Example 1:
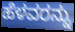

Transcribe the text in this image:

ಹೆಳವರನ್ನು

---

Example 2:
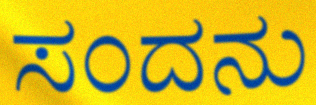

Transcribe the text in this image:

ಸಂದನು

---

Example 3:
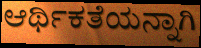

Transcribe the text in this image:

ಆರ್ಥಿಕತೆಯನ್ನಾಗಿ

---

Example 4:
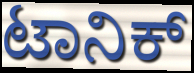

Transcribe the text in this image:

ಟಾನಿಕ್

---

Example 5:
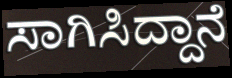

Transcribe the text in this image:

ಸಾಗಿಸಿದ್ದಾನೆ